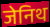
जेनिथ